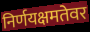
निर्णयक्षमतेवर